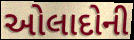
ઓલાદોની